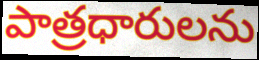
పాత్రధారులను